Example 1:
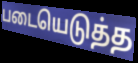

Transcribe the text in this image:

படையெடுத்த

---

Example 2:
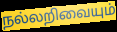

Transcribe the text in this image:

நல்லறிவையும்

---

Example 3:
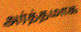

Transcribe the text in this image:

அர்த்தமாக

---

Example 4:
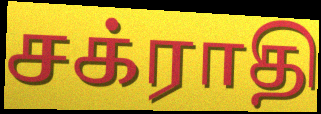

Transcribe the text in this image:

சக்ராதி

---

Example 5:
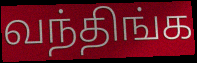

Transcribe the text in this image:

வந்திங்க